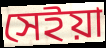
সেইয়া